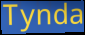
Tynda